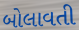
બોલાવતી